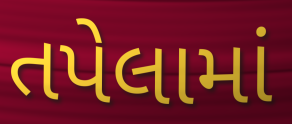
તપેલામાં